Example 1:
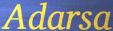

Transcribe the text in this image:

Adarsa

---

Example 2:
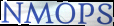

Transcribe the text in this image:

NMOPS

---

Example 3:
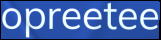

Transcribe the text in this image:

opreetee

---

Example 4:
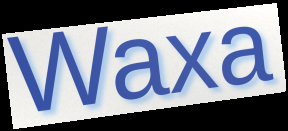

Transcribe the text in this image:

Waxa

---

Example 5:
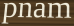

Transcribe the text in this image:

pnam